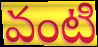
వంటి